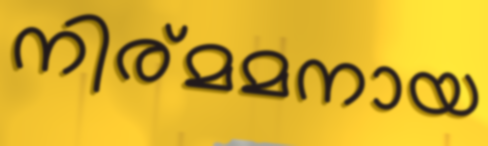
നിര്മമനായ